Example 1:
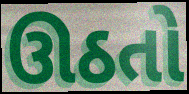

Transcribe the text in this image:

ઊઠતો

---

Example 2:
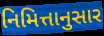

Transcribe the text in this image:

નિમિત્તાનુસાર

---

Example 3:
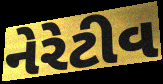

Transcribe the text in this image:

નેરેટીવ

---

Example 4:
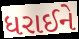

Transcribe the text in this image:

ધરાઈને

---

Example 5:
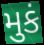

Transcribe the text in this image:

મુકં